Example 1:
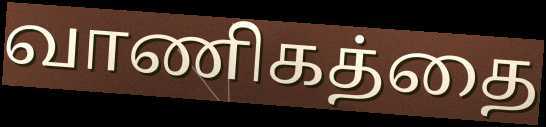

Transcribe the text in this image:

வாணிகத்தை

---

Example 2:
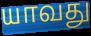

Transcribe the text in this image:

யாவது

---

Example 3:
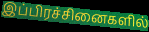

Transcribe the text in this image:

இப்பிரச்சினைகளில்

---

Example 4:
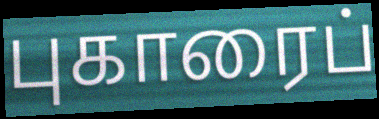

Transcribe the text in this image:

புகாரைப்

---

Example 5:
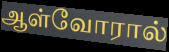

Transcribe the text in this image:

ஆள்வோரால்